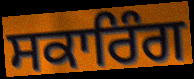
ਸਕਾਰਿੰਗ